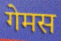
गेमस